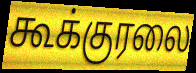
கூக்குரலை